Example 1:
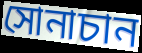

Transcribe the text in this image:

সোনাচান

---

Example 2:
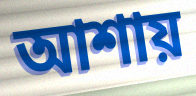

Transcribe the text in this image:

আশায়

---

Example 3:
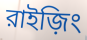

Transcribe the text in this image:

রাইজ়িং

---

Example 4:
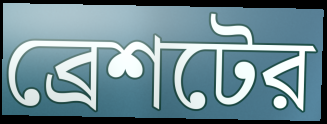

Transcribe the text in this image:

ব্রেশটের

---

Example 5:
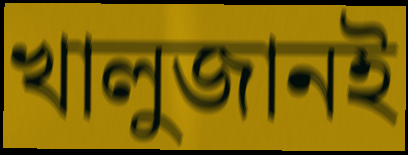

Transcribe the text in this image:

খালুজানই